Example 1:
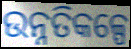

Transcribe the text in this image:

ଉନ୍ନତିକଳ୍ପେ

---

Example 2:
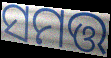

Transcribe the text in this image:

ସମତ୍ତ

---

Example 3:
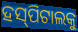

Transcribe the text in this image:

ହସ୍‌ପିଟାଲକୁ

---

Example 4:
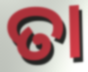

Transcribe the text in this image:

ତା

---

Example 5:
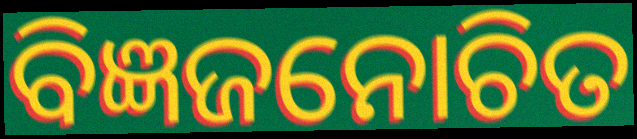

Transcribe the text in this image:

ବିଜ୍ଞଜନୋଚିତ